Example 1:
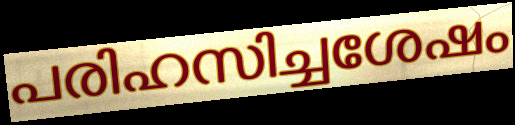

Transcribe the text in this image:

പരിഹസിച്ചശേഷം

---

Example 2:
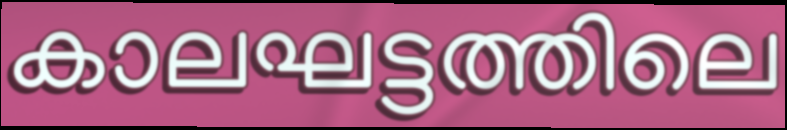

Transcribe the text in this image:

കാലഘട്ടത്തിലെ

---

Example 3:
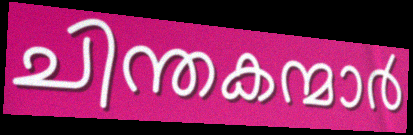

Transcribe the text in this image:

ചിന്തകന്മാർ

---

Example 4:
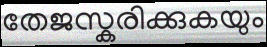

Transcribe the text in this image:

തേജസ്കരിക്കുകയും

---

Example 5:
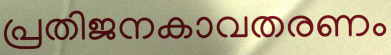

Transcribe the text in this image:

പ്രതിജനകാവതരണം